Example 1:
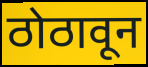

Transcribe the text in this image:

ठोठावून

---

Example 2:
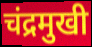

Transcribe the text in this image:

चंद्रमुखी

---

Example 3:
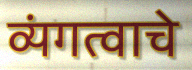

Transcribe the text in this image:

व्यंगत्वाचे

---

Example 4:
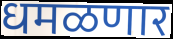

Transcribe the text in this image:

धमळणार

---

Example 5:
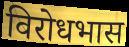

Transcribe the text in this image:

विरोधभास